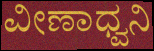
ವೀಣಾಧ್ವನಿ